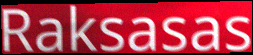
Raksasas